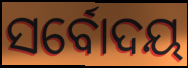
ସର୍ବୋଦୟ